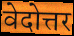
वेदोत्तर